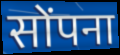
सोंपना